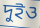
দুইও